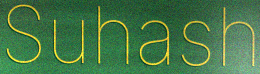
Suhash